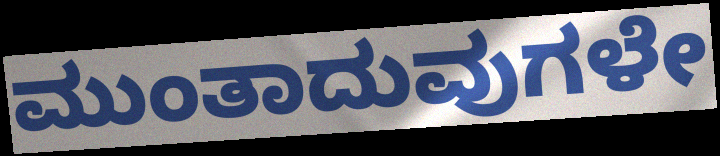
ಮುಂತಾದುವುಗಳೇ